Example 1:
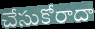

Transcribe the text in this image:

చేసుకోరాదా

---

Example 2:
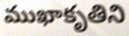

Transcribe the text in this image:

ముఖాకృతిని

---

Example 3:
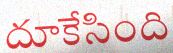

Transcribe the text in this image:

దూకేసింది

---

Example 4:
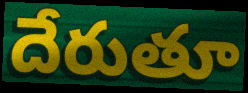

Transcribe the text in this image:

దేరుతూ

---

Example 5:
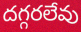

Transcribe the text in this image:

దగ్గరలేవు